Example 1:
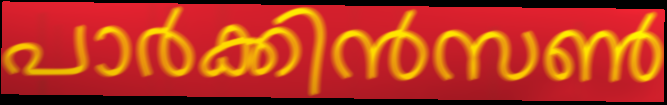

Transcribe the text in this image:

പാർക്കിൻസൺ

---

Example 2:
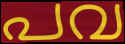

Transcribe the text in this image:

പവ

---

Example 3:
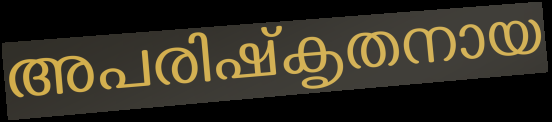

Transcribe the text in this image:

അപരിഷ്‌കൃതനായ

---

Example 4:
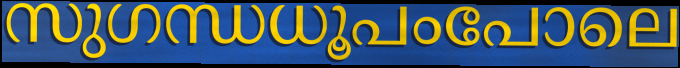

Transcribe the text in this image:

സുഗന്ധധൂപംപോലെ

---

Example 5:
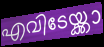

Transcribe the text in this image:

എവിടേയ്ക്കാ